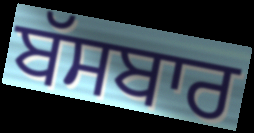
ਬੱਸਬਾਰ